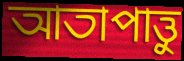
আতাপাত্তু